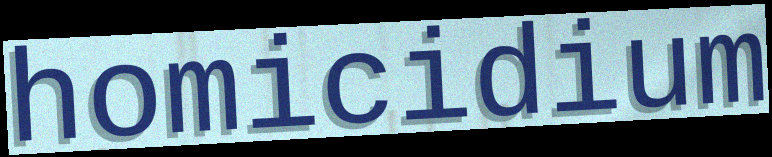
homicidium